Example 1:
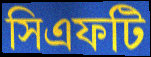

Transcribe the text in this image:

সিএফটি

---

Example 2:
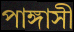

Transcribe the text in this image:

পাঙ্গাসী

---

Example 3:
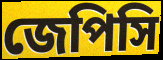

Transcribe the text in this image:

জেপিসি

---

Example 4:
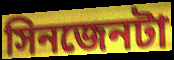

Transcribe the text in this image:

সিনজেনটা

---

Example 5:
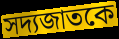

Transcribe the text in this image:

সদ্যজাতকে